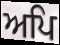
ਅਪਿ